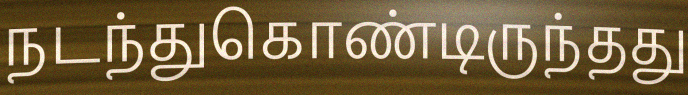
நடந்துகொண்டிருந்தது